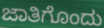
ಜಾತಿಗೊಂದು